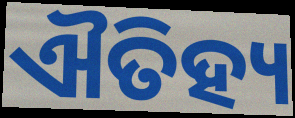
ଐତିହ୍ୟ